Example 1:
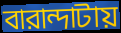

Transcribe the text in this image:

বারান্দাটায়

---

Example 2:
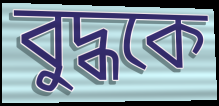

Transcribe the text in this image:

বুদ্ধকে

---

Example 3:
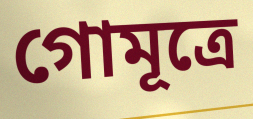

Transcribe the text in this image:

গোমূত্রে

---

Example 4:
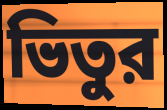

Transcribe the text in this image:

ভিতুর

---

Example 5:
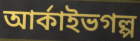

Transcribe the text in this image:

আর্কাইভগল্প